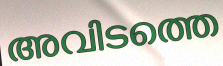
അവിടത്തെ